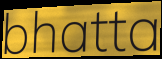
bhatta